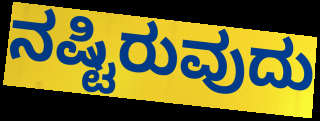
ನಷ್ಟಿರುವುದು